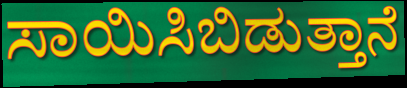
ಸಾಯಿಸಿಬಿಡುತ್ತಾನೆ